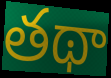
తథా